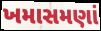
ખમાસમણાં